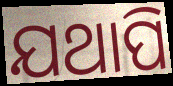
ଯଥାପି